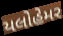
યલોહેમર